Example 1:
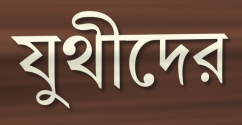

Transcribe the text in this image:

যুথীদের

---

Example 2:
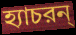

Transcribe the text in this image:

হ্যাচরন্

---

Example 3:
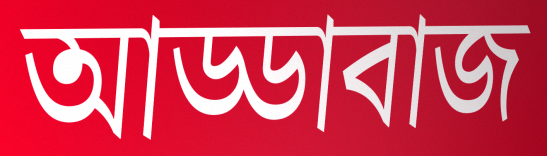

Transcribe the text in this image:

আড্ডাবাজ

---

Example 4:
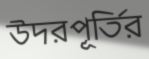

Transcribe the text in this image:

উদরপূর্তির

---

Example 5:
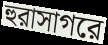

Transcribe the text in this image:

হুরাসাগরে